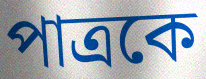
পাত্রকে